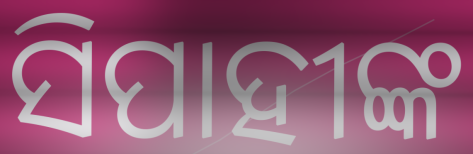
ସିପାହୀଙ୍କ